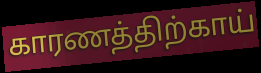
காரணத்திற்காய்